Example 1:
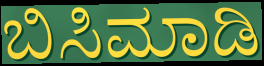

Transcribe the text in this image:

ಬಿಸಿಮಾಡಿ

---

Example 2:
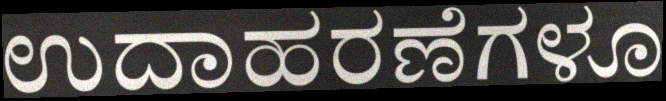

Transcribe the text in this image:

ಉದಾಹರಣೆಗಳೂ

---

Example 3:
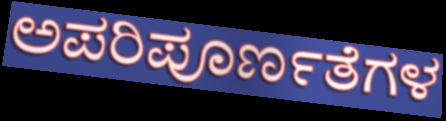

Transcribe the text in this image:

ಅಪರಿಪೂರ್ಣತೆಗಳ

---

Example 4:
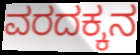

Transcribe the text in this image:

ವರದಕ್ಕನ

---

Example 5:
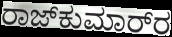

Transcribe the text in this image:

ರಾಜ್‌ಕುಮಾರ್‌ರ